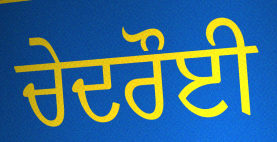
ਚੇਦਰੌਈ